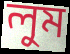
লুম